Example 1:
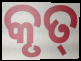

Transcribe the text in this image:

କୃତ୍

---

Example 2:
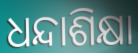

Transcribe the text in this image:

ଧନ୍ଦାଶିକ୍ଷା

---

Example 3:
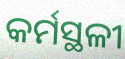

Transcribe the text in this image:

କର୍ମସ୍ଥଳୀ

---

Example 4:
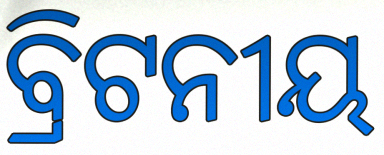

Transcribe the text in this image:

ବ୍ରିଟନୀୟ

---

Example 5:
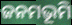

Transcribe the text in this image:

ଜନମଭୂମି